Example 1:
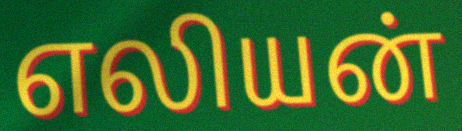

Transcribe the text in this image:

எலியன்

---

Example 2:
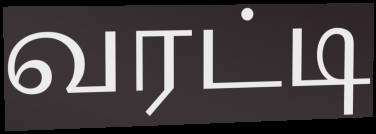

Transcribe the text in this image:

வரட்டி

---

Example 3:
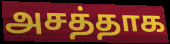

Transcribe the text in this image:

அசத்தாக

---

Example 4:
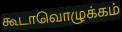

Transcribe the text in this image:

கூடாவொழுக்கம்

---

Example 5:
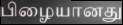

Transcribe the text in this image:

பிழையானது